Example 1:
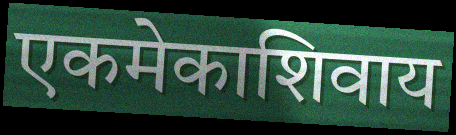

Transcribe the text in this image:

एकमेकाशिवाय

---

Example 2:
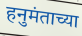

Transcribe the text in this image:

हनुमंताच्या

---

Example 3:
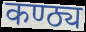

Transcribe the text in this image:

कण्ठ्य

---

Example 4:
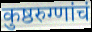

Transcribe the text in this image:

कुष्ठरुग्णांचं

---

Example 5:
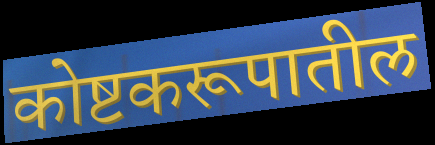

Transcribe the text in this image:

कोष्टकरूपातील